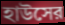
হাউসের